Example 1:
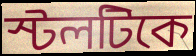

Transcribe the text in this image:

স্টলটিকে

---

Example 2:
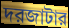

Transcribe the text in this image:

দরজাটার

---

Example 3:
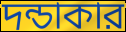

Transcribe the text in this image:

দন্ডাকার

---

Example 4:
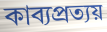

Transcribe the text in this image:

কাব্যপ্রত্যয়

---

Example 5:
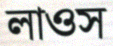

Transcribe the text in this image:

লাওস